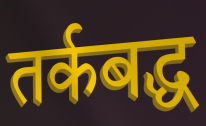
तर्कबद्ध